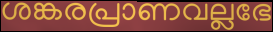
ശങ്കരപ്രാണവല്ലഭേ